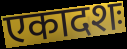
एकादशः